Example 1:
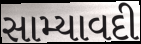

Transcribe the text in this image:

સામ્યાવદી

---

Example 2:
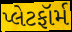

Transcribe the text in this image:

પ્લેટફૉર્મ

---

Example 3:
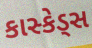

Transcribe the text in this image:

કાસ્કેડ્સ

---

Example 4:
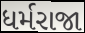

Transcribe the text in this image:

ધર્મરાજા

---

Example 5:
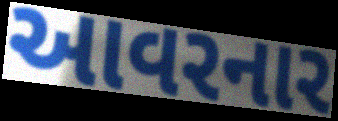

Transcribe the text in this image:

આવરનાર